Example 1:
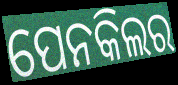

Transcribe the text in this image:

ପେନକିଲର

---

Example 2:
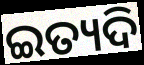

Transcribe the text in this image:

ଇତ୍ୟଦି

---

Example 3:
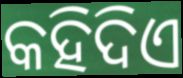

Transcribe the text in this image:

କହିଦିଏ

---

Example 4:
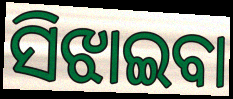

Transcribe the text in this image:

ସିଝାଇବା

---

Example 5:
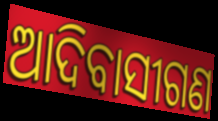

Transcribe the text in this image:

ଆଦିବାସୀଗଣ